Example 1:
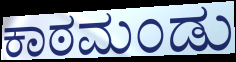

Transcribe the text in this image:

ಕಾಠಮಂಡು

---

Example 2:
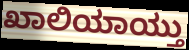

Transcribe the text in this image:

ಖಾಲಿಯಾಯ್ತು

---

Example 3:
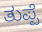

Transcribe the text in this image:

ತುಪ್ಪೆ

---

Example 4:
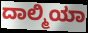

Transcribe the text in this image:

ದಾಲ್ಮಿಯಾ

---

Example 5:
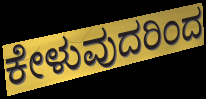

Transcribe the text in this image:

ಕೇಳುವುದರಿಂದ